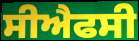
ਸੀਐਫਸੀ